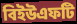
বিইউএফটি